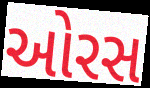
ઓરસ